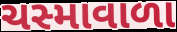
ચસ્માવાળા